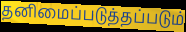
தனிமைப்படுத்தப்படும்